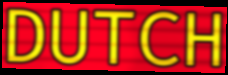
DUTCH